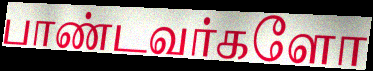
பாண்டவர்களோ